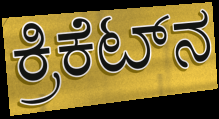
ಕ್ರಿಕೆಟ್‌ನ